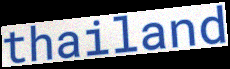
thailand